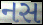
નસ